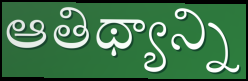
ఆతిథ్యాన్ని